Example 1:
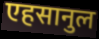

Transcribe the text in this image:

एहसानुल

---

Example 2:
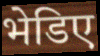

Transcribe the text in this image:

भेडिए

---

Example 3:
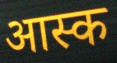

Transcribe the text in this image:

आस्क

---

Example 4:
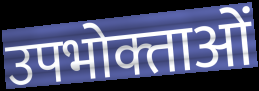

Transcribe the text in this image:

उपभोक्‍ताओं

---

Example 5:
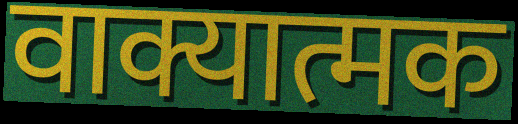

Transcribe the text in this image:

वाक्यात्मक